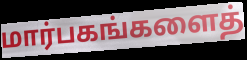
மார்பகங்களைத்